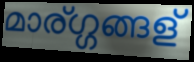
മാര്ഗ്ഗങ്ങള്